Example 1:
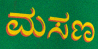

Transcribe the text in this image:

ಮಸಣ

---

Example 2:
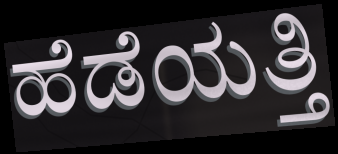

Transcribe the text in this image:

ಹೆಡೆಯತ್ತಿ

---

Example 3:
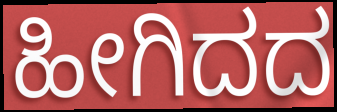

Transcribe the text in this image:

ಹೀಗಿದದ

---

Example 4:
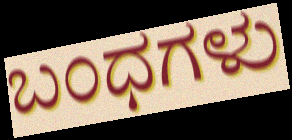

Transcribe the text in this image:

ಬಂಧಗಳು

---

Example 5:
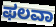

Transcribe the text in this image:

ಫಲವಾ